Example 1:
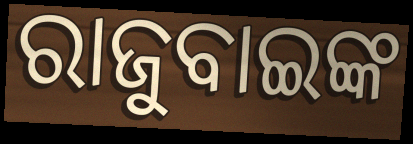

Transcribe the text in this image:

ରାଜୁବାଇଙ୍କ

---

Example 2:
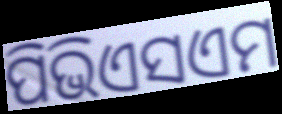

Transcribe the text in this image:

ପିଭିଏସଏମ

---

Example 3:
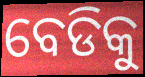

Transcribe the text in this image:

ବେଡିକୁ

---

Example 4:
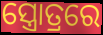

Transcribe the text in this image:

ସ୍ତ୍ରୋତ୍ରରେ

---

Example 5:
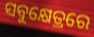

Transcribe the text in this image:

ସବୁକ୍ଷେତ୍ରରେ